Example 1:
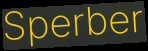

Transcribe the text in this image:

Sperber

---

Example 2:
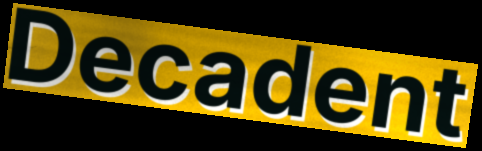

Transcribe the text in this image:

Decadent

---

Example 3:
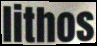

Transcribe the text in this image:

lithos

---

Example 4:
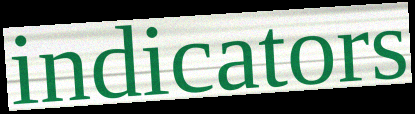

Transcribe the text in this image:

indicators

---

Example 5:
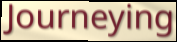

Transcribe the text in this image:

Journeying